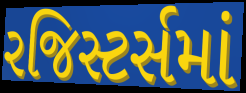
રજિસ્ટર્સમાં